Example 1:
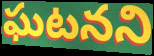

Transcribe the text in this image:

ఘటనని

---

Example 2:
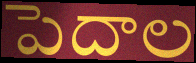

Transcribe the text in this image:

పెదాల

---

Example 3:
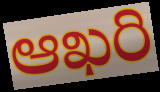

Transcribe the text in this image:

ఆఖరి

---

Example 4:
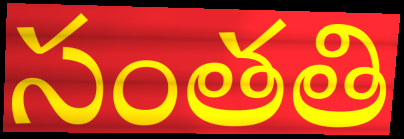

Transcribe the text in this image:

సంతతి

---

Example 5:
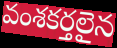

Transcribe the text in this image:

వంశకర్తలైన